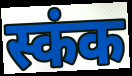
स्कंक